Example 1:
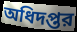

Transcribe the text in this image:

অধিদপ্তর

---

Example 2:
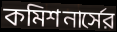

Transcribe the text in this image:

কমিশনার্সের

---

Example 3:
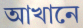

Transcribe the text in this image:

আখানে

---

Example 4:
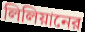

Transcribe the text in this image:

লিলিয়ানের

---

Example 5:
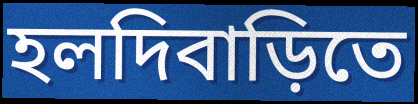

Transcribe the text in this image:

হলদিবাড়িতে